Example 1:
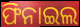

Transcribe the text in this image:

ଫିନାଇଲ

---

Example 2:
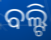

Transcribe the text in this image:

ବଲ୍ଟି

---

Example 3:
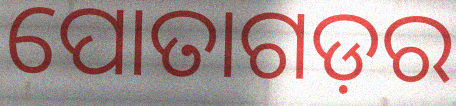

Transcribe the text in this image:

ପୋତାଗଡ଼ର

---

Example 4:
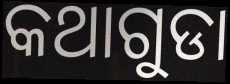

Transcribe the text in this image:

କଥାଗୁଡା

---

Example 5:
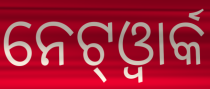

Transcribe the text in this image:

ନେଟ୍ଓ୍ବାର୍କ